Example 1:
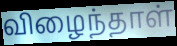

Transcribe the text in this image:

விழைந்தாள்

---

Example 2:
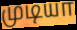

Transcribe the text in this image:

முடியா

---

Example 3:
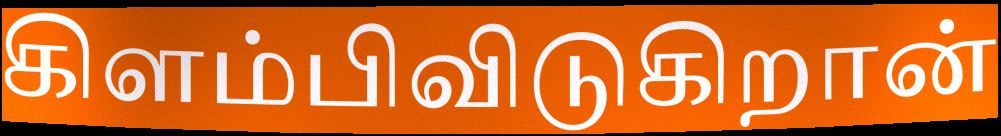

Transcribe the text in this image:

கிளம்பிவிடுகிறான்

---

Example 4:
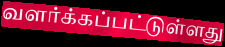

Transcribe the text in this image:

வளர்க்கப்பட்டுள்ளது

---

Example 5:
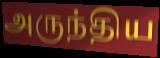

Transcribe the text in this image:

அருந்திய